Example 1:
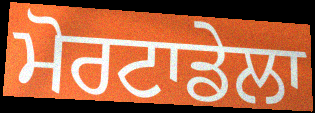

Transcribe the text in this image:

ਮੋਰਟਾਡੇਲਾ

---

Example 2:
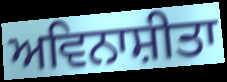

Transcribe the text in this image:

ਅਵਿਨਾਸ਼ੀਤਾ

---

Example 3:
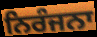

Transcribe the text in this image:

ਨਿਰੰਜਨਾ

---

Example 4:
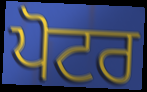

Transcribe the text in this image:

ਪੋਟਰ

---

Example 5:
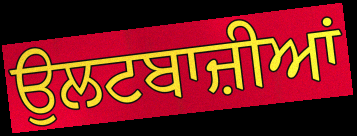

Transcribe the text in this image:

ਉਲਟਬਾਜ਼ੀਆਂ